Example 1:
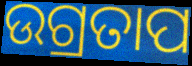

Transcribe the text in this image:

ଉଗ୍ରତାପ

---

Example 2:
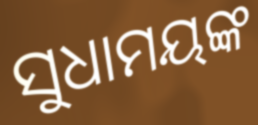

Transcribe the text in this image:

ସୁଧାମୟଙ୍କ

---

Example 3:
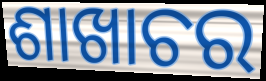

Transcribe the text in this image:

ଶାଖାଚର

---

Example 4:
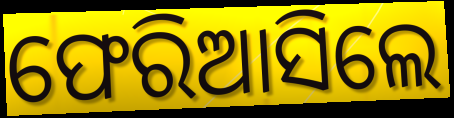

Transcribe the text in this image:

ଫେରିଆସିଲେ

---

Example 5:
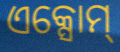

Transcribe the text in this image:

ଏକ୍ସୋମ୍